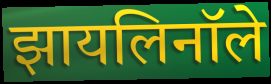
झायलिनॉले